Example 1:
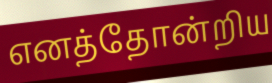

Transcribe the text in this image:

எனத்தோன்றிய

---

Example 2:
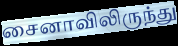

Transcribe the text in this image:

சைனாவிலிருந்து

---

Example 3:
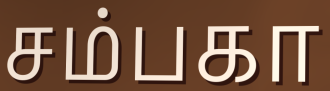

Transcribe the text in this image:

சம்பகா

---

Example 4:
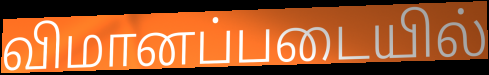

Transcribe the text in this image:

விமானப்படையில்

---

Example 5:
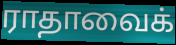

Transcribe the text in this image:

ராதாவைக்